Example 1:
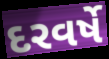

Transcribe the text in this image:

દરવર્ષે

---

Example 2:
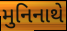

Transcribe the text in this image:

મુનિનાથે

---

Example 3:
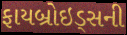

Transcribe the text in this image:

ફાયબ્રોઇડ્સની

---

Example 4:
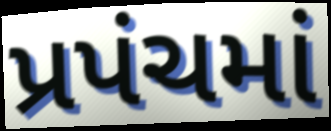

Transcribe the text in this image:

પ્રપંચમાં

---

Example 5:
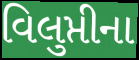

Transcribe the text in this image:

વિલુપ્તીના